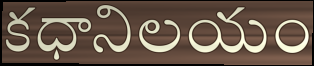
కధానిలయం